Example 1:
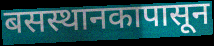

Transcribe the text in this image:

बसस्थानकापासून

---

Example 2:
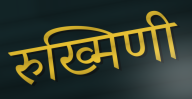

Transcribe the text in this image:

रुख्मिणी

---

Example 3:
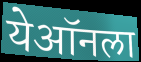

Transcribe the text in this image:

येऑनला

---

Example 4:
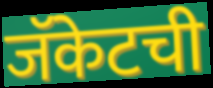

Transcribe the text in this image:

जॅकेटची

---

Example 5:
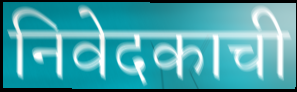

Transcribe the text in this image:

निवेदकाची